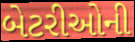
બેટરીઓની